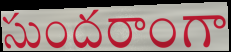
సుందరాంగా